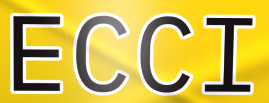
ECCI